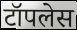
टॉपलेस